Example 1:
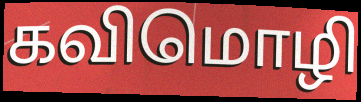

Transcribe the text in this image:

கவிமொழி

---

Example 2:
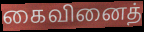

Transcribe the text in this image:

கைவினைத்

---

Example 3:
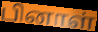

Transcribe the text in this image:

பினாள்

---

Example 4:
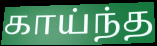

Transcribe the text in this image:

காய்ந்த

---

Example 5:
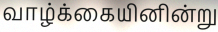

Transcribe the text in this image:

வாழ்க்கையினின்று